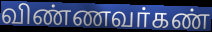
விண்ணவர்கண்